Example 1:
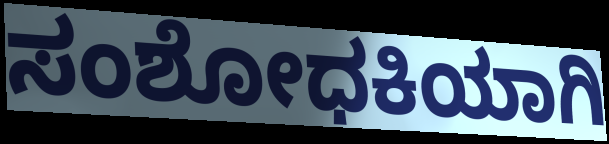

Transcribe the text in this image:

ಸಂಶೋಧಕಿಯಾಗಿ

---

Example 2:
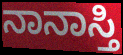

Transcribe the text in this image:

ನಾನಾಸ್ತಿ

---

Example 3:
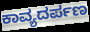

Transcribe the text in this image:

ಕಾವ್ಯದರ್ಪಣ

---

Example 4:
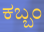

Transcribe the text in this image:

ಕಬ್ಬಂ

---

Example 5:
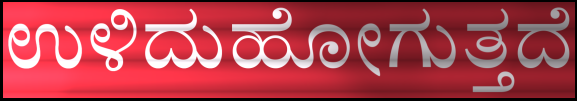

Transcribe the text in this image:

ಉಳಿದುಹೋಗುತ್ತದೆ